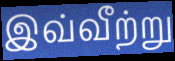
இவ்வீற்று